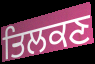
ਤਿਲਕਣ